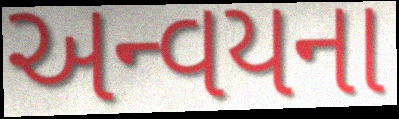
અન્વયના